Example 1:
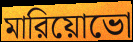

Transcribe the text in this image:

মারিয়োভো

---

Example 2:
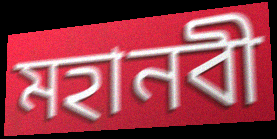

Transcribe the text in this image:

মহানবী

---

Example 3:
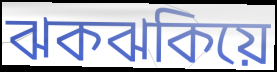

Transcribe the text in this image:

ঝকঝকিয়ে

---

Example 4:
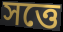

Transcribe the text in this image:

সত্তে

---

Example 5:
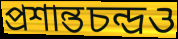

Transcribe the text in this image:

প্রশান্তচন্দ্রও